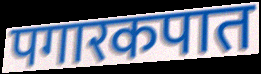
पगारकपात